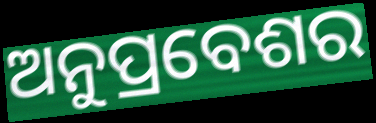
ଅନୁପ୍ରବେଶର